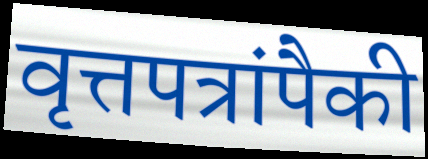
वृत्तपत्रांपैकी